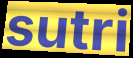
sutri